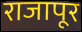
राजापूर